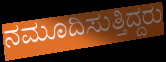
ನಮೂದಿಸುತ್ತಿದ್ದರು